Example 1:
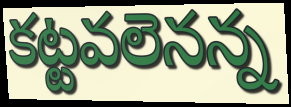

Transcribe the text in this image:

కట్టవలెనన్న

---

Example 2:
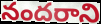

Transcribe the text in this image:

నందరాని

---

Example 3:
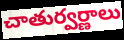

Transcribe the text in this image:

చాతుర్వర్ణాలు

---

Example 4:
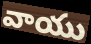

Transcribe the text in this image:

వాయు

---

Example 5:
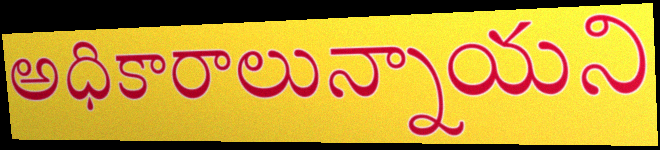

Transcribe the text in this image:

అధికారాలున్నాయని